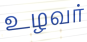
உழவர்